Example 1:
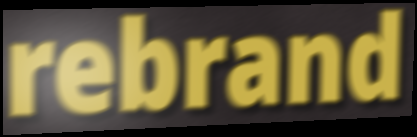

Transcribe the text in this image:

rebrand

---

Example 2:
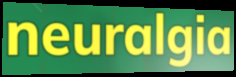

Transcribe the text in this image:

neuralgia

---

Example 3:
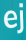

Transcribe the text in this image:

ej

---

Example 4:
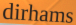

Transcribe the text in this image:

dirhams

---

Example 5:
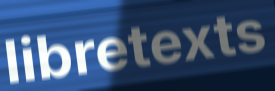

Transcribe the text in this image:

libretexts